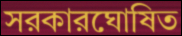
সরকারঘোষিত